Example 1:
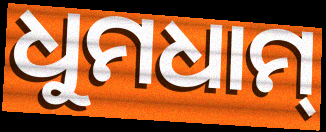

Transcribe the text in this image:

ଧୁମଧାମ୍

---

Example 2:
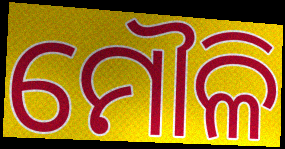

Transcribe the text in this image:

ମୌଳି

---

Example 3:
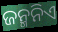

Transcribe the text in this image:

ଜନ୍ମନିଏ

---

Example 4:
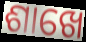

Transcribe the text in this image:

ଶାଖେ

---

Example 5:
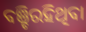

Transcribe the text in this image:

ବଞ୍ଚିରହିଥିବା